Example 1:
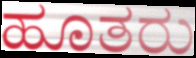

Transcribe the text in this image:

ಹೂತರು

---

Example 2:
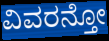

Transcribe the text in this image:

ವಿವರನ್ತೋ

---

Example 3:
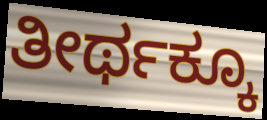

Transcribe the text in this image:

ತೀರ್ಥಕ್ಕೂ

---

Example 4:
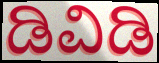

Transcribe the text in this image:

ಡಿವಿಡಿ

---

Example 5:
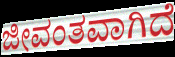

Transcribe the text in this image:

ಜೀವಂತವಾಗಿದೆ